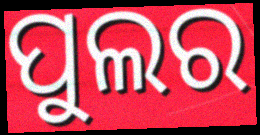
ପୁଲର